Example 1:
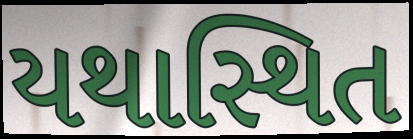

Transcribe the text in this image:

યથાસ્થિત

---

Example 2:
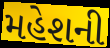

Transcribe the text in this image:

મહેશની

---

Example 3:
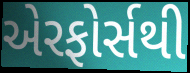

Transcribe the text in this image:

એરફોર્સથી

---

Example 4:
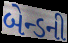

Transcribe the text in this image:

બેન્ડની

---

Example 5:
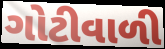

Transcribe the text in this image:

ગોટીવાળી